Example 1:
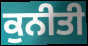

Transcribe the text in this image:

ਕੁਨੀਤੀ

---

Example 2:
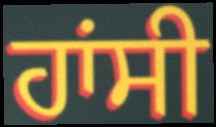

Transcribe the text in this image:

ਹਾਂਸੀ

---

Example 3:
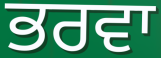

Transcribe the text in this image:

ਭਰਵਾ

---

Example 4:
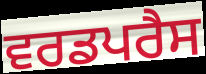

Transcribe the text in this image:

ਵਰਡਪਰੈਸ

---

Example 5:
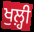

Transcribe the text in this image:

ਖੁਲ਼੍ਹੀ